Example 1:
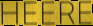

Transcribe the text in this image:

HEERE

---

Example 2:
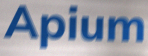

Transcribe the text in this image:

Apium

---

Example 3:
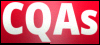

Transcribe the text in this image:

CQAs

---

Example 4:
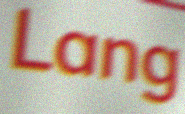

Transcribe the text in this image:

Lang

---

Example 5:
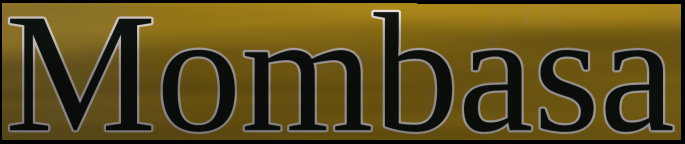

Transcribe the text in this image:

Mombasa